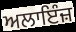
ਅਲਾਇੰਜ਼